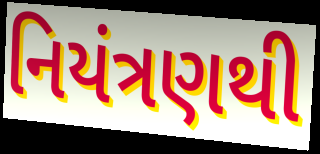
નિયંત્રણથી